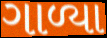
ગાળ્યા